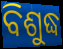
ବିଶୁଦ୍ଧ